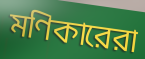
মণিকারেরা